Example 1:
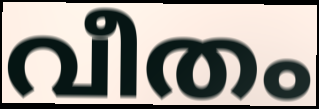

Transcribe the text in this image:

വീതം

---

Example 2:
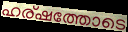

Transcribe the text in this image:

ഹര്ഷത്തോടെ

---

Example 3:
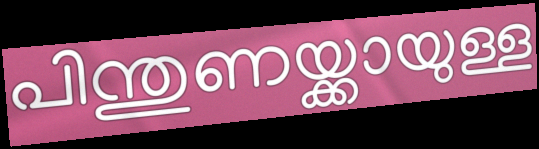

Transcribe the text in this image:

പിന്തുണയ്ക്കായുള്ള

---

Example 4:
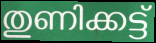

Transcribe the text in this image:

തുണിക്കട്ട്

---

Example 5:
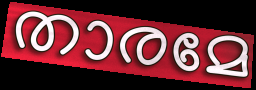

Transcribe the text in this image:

താരമേ